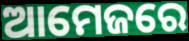
ଆମେଜରେ